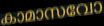
കാമാസവോ